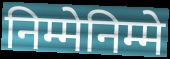
निम्मेनिम्मे